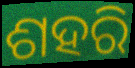
ଶହରି